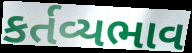
કર્તવ્યભાવ